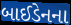
બાઈડેનના